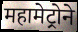
महामेट्रोने